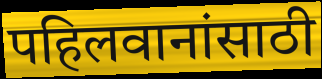
पहिलवानांसाठी